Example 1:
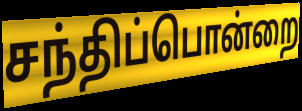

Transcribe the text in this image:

சந்திப்பொன்றை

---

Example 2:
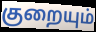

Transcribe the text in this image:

குறையும்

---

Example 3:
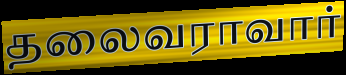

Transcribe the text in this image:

தலைவராவார்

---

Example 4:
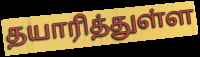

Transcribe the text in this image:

தயாரித்துள்ள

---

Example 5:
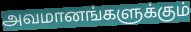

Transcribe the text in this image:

அவமானங்களுக்கும்